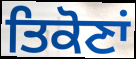
ਤਿਕੋਣਾਂ